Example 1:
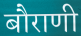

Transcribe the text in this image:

बौराणी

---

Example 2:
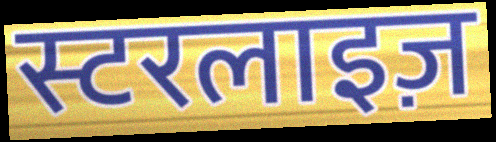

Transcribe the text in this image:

स्टरलाइज़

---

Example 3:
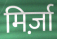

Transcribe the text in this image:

मिर्ज़ा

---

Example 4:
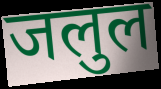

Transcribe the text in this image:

जलुल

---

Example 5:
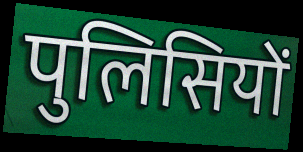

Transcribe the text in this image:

पुलिसियों